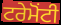
ਟਰੇਮੋਂਟੀ